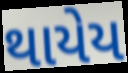
થાયેય